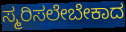
ಸ್ಮರಿಸಲೇಬೇಕಾದ